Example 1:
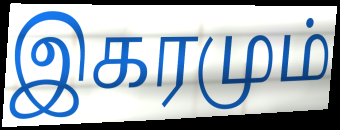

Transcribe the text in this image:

இகரமும்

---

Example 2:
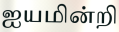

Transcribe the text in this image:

ஐயமின்றி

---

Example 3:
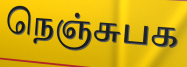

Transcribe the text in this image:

நெஞ்சுபக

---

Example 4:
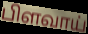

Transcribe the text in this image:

பிளவாய்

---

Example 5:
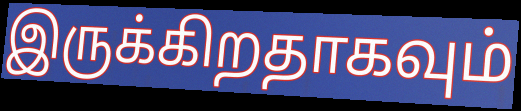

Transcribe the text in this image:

இருக்கிறதாகவும்